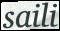
saili